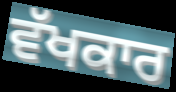
ਵੱਖਕਾਰ